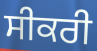
ਸੀਕਰੀ